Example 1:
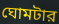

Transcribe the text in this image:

ঘোমটার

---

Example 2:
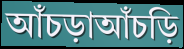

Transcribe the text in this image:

আঁচড়াআঁচড়ি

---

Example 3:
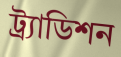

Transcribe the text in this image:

ট্র্যাডিশন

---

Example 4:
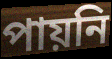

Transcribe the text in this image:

পায়নি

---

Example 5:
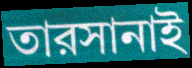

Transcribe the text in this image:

তারসানাই